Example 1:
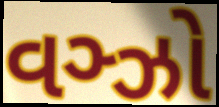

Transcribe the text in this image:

વઞ્ઝો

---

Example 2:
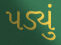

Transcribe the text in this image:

પડ્યું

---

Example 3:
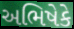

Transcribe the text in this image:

અભિષેકે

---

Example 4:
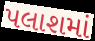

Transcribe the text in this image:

પલાશમાં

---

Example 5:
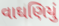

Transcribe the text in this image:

વાઘણિયું